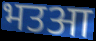
भउआ